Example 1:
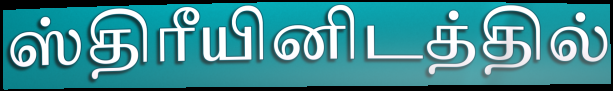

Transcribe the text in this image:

ஸ்திரீயினிடத்தில்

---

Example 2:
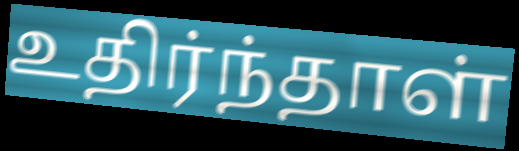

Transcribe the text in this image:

உதிர்ந்தாள்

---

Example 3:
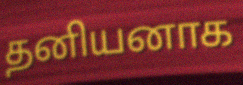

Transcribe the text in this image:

தனியனாக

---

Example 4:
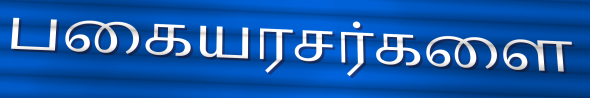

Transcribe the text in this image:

பகையரசர்களை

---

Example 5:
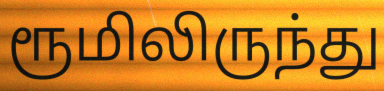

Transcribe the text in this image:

ரூமிலிருந்து